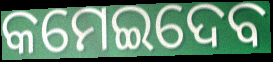
କମେଇଦେବ